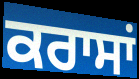
ਕਰਾਸਾਂ